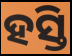
ହସ୍ତି